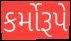
કર્મોરૂપે